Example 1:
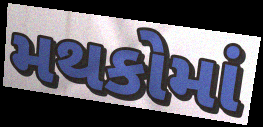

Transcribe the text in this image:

મથકોમાં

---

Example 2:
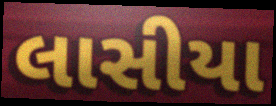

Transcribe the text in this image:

લાસીયા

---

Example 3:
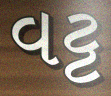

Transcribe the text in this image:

વટ્ટ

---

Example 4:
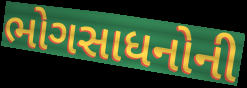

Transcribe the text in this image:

ભોગસાધનોની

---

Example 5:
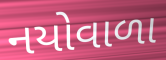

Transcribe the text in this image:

નયોવાળા